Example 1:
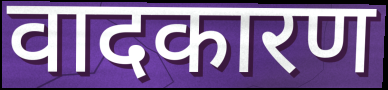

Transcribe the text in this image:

वादकारण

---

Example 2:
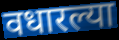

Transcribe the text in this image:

वधारल्या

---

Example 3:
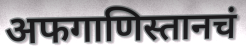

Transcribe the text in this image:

अफगाणिस्तानचं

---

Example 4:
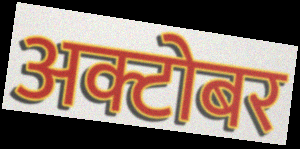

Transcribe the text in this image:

अक्टोबर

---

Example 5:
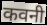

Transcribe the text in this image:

कवनी